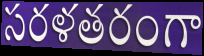
సరళతరంగా